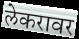
लेकरावर